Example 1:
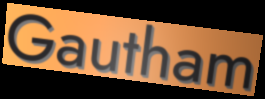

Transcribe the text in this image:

Gautham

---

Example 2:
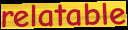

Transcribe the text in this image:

relatable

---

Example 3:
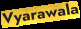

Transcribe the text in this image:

Vyarawala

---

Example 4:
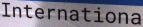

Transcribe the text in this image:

Internationa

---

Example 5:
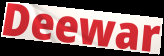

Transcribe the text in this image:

Deewar